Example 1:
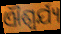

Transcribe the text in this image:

ଐଶ୍ଵର୍ଯ୍ୟ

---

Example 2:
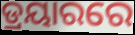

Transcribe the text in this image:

ଡ୍ରୟାରରେ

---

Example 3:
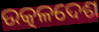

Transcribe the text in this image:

ଉତ୍କଳଦେଶ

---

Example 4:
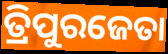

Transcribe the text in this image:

ତ୍ରିପୁରଜେତା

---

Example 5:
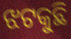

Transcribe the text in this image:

ଝଟକୁଛି